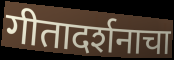
गीतादर्शनाचा